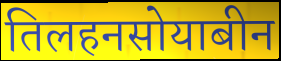
तिलहनसोयाबीन